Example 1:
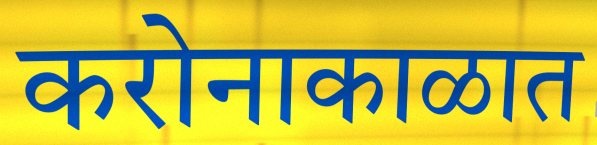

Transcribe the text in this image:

करोनाकाळात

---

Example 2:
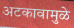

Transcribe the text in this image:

अटकावामुळे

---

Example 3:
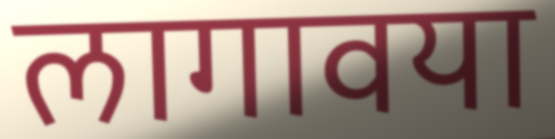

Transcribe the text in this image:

लागावया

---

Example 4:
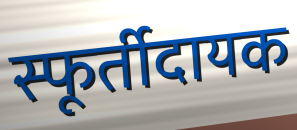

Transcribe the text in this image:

स्फूर्तीदायक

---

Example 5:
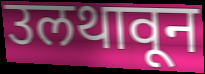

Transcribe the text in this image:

उलथावून